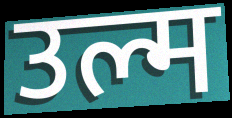
उल्म